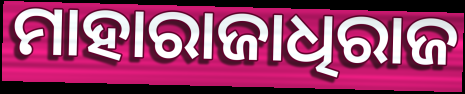
ମାହାରାଜାଧିରାଜ